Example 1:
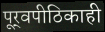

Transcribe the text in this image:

पूर्वपीठिकाही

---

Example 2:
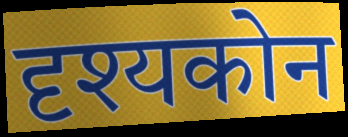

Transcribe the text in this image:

दृश्‍यकोन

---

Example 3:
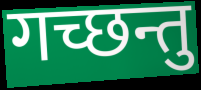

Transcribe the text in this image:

गच्छन्तु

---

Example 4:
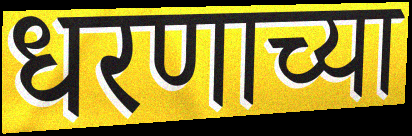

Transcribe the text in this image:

धरणाच्या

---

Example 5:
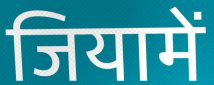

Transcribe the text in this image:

जियामें